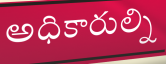
అధికారుల్ని